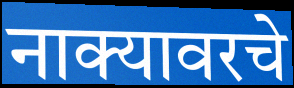
नाक्यावरचे